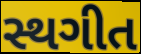
સ્થગીત